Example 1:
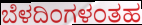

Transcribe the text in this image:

ಬೆಳದಿಂಗಳಂತಹ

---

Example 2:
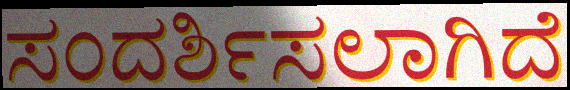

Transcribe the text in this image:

ಸಂದರ್ಶಿಸಲಾಗಿದೆ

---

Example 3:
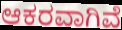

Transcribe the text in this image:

ಆಕರವಾಗಿವೆ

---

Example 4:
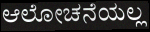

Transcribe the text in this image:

ಆಲೋಚನೆಯಲ್ಲ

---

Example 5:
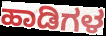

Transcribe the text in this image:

ಹಾಡಿಗಳ